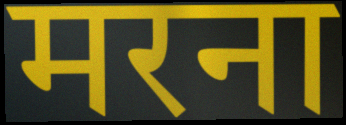
मरना